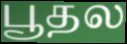
பூதல